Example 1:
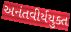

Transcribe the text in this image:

અનંતવીર્યયુક્ત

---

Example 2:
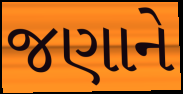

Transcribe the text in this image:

જણાને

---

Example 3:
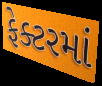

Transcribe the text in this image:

ફેક્ટરમાં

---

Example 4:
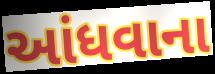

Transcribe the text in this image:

આંધવાના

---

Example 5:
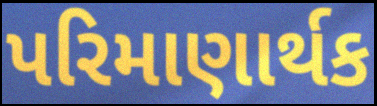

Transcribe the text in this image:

પરિમાણાર્થક